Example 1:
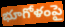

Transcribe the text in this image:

భూగోళంపై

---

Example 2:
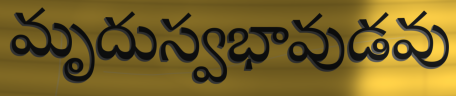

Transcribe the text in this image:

మృదుస్వభావుడవు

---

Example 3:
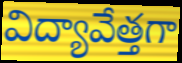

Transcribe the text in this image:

విద్యావేత్తగా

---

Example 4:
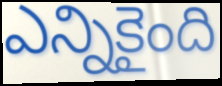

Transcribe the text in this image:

ఎన్నికైంది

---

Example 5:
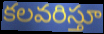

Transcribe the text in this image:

కలవరిస్తూ